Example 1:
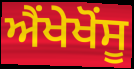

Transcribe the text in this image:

ਐਂਖੇਖੋਂਸੂ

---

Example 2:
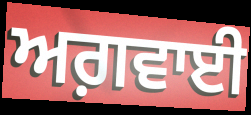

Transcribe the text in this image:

ਅਗ਼ਵਾਈ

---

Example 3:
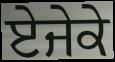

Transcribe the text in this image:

ਏਜੇਕੇ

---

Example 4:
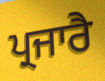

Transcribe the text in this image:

ਪ੍ਰਜਾਰੈ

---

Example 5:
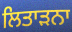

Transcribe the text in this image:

ਲਿਤਾੜਨਾ